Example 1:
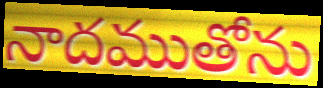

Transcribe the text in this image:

నాదముతోను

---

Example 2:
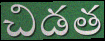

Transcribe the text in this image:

చిడత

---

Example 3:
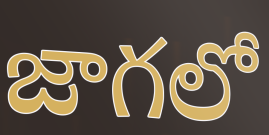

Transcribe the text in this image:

జాగలో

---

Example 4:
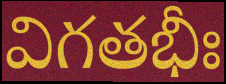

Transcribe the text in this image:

విగతభీః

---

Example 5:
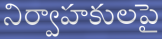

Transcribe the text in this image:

నిర్వాహకులపై